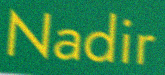
Nadir